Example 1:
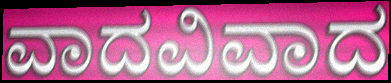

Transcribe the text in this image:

ವಾದವಿವಾದ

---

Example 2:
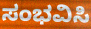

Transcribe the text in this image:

ಸಂಭವಿಸಿ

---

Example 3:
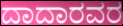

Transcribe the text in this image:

ದಾದಾರವರ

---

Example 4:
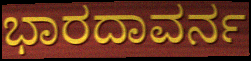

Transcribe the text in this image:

ಭಾರದಾವರ್ನ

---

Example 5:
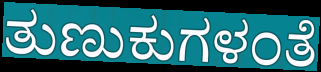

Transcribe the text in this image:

ತುಣುಕುಗಳಂತೆ